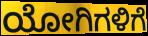
ಯೋಗಿಗಳಿಗೆ